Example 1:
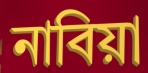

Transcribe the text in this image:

নাবিয়া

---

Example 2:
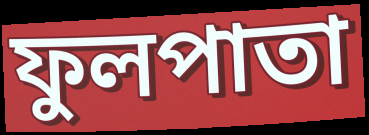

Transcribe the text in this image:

ফুলপাতা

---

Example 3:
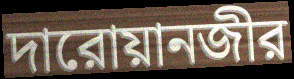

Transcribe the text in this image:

দারোয়ানজীর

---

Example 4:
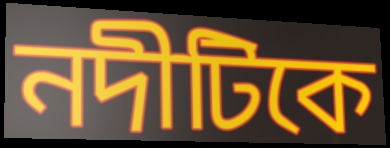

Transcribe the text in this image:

নদীটিকে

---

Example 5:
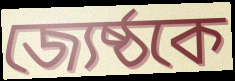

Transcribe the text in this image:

জ্যেষ্ঠকে